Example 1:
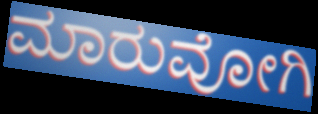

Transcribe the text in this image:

ಮಾರುವೋಗಿ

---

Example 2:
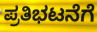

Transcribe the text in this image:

ಪ್ರತಿಭಟನೆಗೆ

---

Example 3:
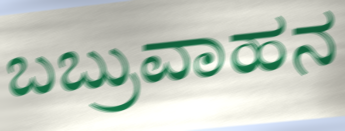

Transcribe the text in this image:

ಬಬ್ರುವಾಹನ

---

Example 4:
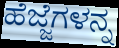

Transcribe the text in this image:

ಹೆಜ್ಜೆಗಳನ್ನ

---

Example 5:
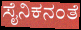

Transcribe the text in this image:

ಸೈನಿಕನಂತೆ